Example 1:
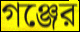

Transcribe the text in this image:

গঞ্জের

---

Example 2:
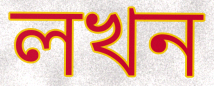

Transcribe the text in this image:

লখন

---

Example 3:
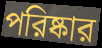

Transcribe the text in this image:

পরিষ্কার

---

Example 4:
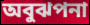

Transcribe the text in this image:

অবুঝপনা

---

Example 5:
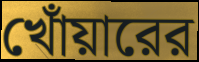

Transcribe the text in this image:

খোঁয়ারের